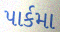
પાર્કમા